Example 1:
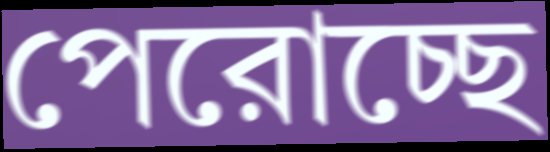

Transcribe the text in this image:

পেরোচ্ছে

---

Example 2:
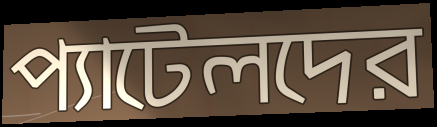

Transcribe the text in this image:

প্যাটেলদের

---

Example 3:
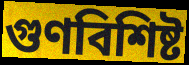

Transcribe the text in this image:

গুণবিশিষ্ট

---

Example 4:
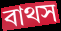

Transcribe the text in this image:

বাথস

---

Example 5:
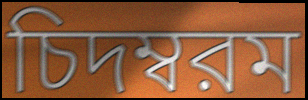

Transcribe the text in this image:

চিদম্বরম